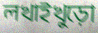
লখাইখুড়ো